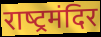
राष्ट्रमंदिर